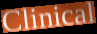
Clinical